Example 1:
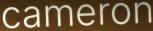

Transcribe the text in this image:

cameron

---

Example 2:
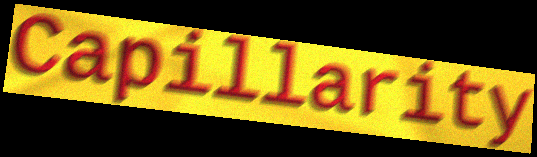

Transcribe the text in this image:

Capillarity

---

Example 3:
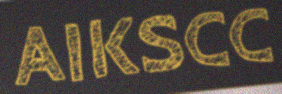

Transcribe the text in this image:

AIKSCC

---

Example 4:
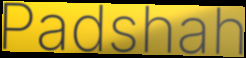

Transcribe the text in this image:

Padshah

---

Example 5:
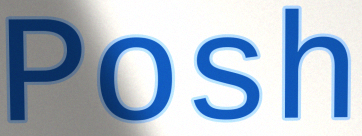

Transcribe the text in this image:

Posh